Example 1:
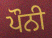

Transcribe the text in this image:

ਪੌਨੀ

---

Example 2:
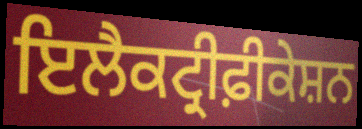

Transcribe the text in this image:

ਇਲੈਕਟ੍ਰੀਫ਼ੀਕੇਸ਼ਨ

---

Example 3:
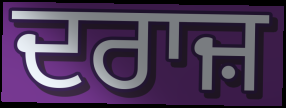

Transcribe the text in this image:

ਦਰਾਜ਼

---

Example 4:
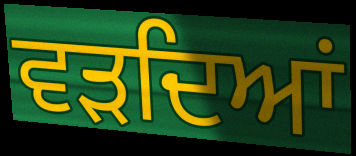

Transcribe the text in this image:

ਵੜਦਿਆਂ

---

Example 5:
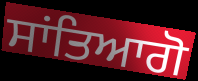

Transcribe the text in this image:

ਸਾਂਤਿਆਗੋ